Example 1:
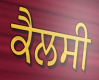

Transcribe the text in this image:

ਕੈਲਸੀ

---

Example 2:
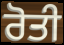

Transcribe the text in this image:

ਰੋਤੀ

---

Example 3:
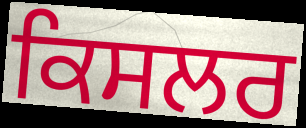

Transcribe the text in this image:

ਕਿਸਲਰ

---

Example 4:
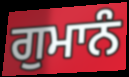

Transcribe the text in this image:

ਗੁਮਾਨੰ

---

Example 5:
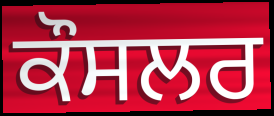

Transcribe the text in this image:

ਕੌਸਲਰ